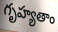
గృహ్యతాం